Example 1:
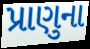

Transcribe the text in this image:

પ્રાણુના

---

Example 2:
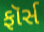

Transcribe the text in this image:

ફૉર્સ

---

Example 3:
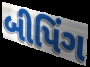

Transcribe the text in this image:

બીપિંગ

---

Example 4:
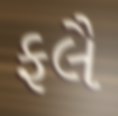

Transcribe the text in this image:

ફલૈ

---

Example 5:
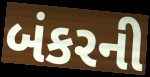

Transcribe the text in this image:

બંકરની